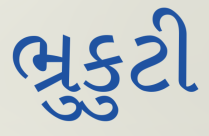
ભ્રુકુટી